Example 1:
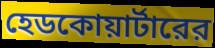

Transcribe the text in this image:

হেডকোয়ার্টারের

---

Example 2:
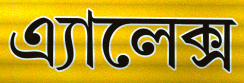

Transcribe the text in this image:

এ্যালেক্স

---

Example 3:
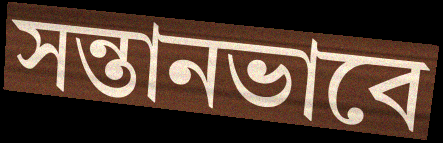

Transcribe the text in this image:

সন্তানভাবে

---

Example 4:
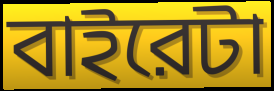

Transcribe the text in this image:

বাইরেটা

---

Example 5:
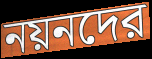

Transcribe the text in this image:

নয়নদের